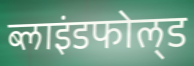
ब्लाइंडफोल्ड